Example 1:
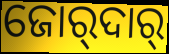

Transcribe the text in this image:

ଜୋର୍‍ଦାର୍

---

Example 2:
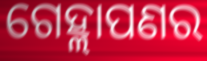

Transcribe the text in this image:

ଗେହ୍ଲାପଣର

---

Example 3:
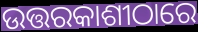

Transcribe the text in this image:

ଉତ୍ତରକାଶୀଠାରେ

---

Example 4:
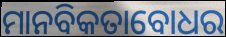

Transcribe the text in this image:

ମାନବିକତାବୋଧର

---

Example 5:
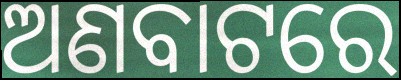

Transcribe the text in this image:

ଅଣବାଟରେ